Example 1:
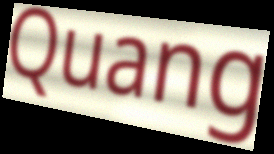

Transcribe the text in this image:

Quang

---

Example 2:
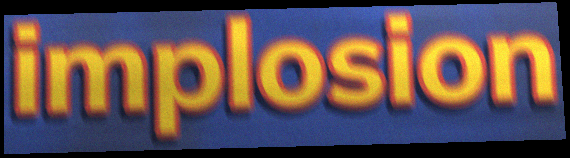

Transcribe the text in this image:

implosion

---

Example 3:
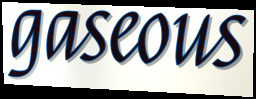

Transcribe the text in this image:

gaseous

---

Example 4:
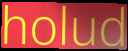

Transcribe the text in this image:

holud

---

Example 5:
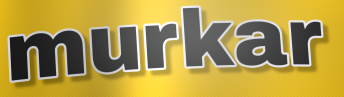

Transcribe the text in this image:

murkar